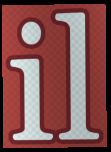
il